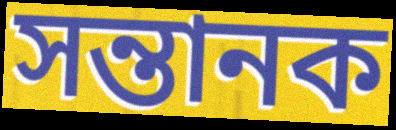
সন্তানক